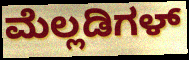
ಮೆಲ್ಲಡಿಗಳ್